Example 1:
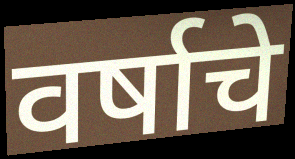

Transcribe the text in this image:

वर्षाचे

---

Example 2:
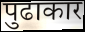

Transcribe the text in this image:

पुढाकार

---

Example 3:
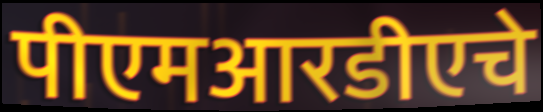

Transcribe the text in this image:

पीएमआरडीएचे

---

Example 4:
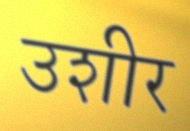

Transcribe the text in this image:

उशीर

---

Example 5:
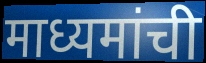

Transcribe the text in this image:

माध्यमांची